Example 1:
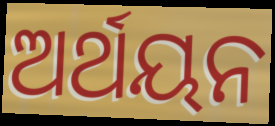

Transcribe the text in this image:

ଅର୍ଥୟନ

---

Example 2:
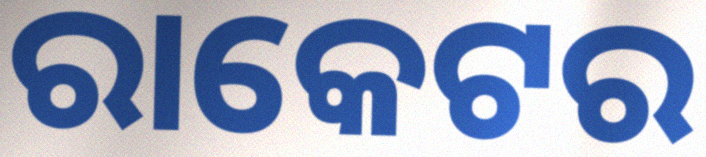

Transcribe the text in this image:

ରାକେଟର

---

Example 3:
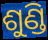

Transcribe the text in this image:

ଶୁଣ୍ଡି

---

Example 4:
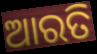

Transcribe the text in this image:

ଆରତି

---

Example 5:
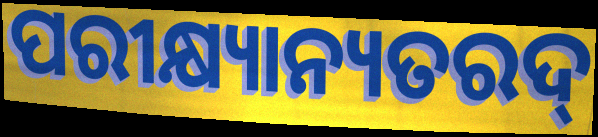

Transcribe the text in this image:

ପରୀକ୍ଷ୍ୟାନ୍ୟତରଦ୍